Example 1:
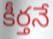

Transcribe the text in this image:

కీర్తనే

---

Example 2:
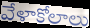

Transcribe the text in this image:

వేళాకోలాలు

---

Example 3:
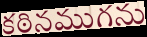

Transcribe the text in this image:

కఠినముగను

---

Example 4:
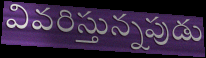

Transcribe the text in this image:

వివరిస్తున్నపుడు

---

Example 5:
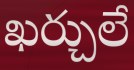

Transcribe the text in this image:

ఖర్చులే